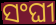
ସଂଘୀ